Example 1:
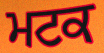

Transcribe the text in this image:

ਮਟਕ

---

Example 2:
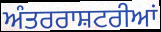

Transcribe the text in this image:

ਅੰਤਰਰਾਸ਼ਟਰੀਆਂ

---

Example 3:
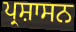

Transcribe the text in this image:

ਪ੍ਰਸ਼ਾਸਨ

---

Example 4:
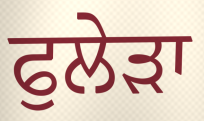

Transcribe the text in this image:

ਫੁਲੇੜਾ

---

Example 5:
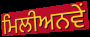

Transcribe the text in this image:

ਮਿਲੀਅਨਵੇਂ